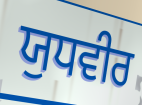
ਯੁਧਵੀਰ